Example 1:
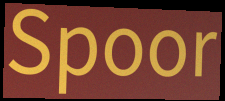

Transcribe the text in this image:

Spoor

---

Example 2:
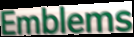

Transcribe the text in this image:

Emblems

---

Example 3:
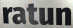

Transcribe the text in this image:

ratun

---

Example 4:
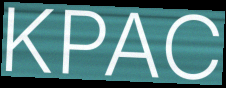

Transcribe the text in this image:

KPAC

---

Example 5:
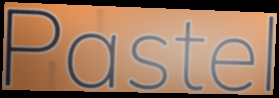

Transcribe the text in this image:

Pastel